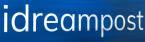
idreampost